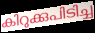
കിറുക്കുപിടിച്ച